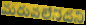
మరువలేనిదని